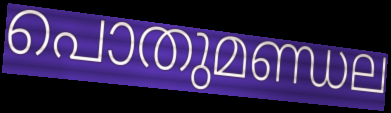
പൊതുമണ്ഡല